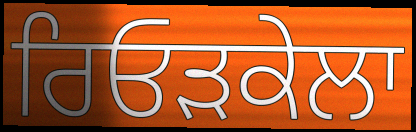
ਰਿਓੜਕੇਲਾ